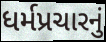
ધર્મપ્રચારનું